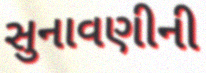
સુનાવણીની